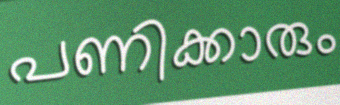
പണിക്കാരും